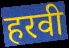
हरवी